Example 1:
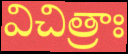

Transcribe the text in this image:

విచిత్రాః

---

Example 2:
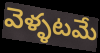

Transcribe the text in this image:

వెళ్ళటమే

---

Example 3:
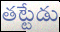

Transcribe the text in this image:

తట్టేడు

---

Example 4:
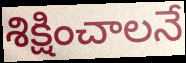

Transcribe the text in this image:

శిక్షించాలనే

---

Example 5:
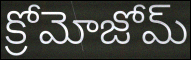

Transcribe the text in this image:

క్రోమోజోమ్